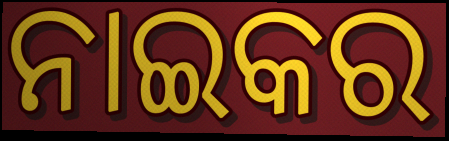
ନାଇକର